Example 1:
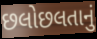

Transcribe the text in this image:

છલોછલતાનું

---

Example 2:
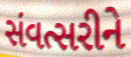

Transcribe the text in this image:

સંવત્સરીને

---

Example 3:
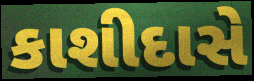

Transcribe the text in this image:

કાશીદાસે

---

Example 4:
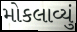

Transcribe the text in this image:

મોકલાવ્યું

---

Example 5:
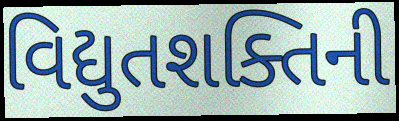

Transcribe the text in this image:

વિદ્યુતશક્તિની